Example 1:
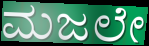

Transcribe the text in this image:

ಮಜಲೇ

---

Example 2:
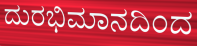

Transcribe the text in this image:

ದುರಭಿಮಾನದಿಂದ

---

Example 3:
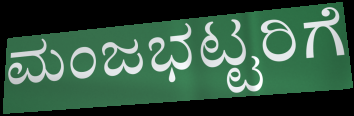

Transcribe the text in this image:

ಮಂಜಭಟ್ಟರಿಗೆ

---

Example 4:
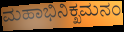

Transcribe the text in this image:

ಮಹಾಭಿನಿಕ್ಖಮನಂ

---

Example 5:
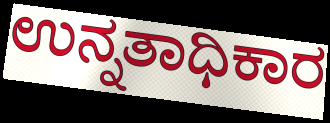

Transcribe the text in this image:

ಉನ್ನತಾಧಿಕಾರ